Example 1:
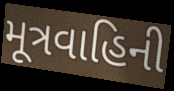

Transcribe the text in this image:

મૂત્રવાહિની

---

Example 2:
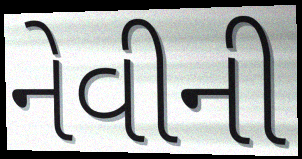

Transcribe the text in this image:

નેવીની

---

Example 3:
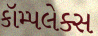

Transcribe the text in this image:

કૉમ્પલેક્સ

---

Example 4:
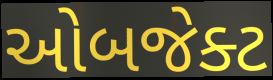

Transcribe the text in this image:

ઓબજેક્ટ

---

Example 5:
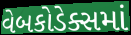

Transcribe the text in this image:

વેબકોડેક્સમાં